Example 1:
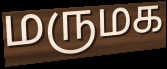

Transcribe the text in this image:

மருமக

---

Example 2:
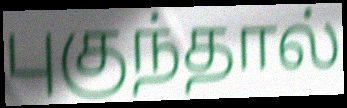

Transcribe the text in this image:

புகுந்தால்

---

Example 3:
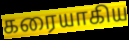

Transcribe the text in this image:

கரையாகிய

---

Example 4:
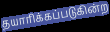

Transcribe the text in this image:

தயாரிக்கப்படுகின்ற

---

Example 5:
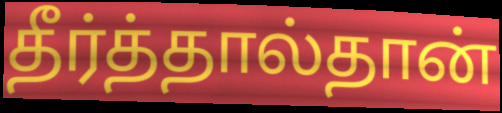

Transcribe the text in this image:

தீர்த்தால்தான்